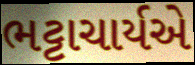
ભટ્ટાચાર્યએ